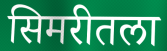
सिमरीतला